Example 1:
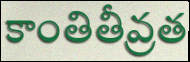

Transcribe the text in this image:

కాంతితీవ్రత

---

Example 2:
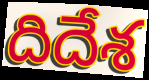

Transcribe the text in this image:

దిదేశ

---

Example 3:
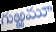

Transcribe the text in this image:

గుఱ్ఱమూ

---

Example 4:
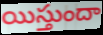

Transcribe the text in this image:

యిస్తుందా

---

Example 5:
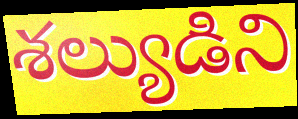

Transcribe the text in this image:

శల్యుడిని